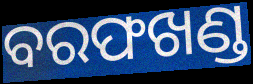
ବରଫଖଣ୍ଡ